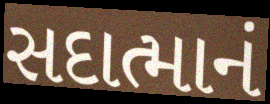
સદાત્માનં